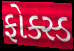
ફોક્સ્ડ